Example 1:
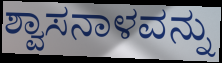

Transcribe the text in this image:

ಶ್ವಾಸನಾಳವನ್ನು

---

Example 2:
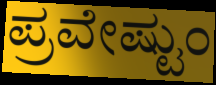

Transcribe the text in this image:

ಪ್ರವೇಷ್ಟುಂ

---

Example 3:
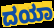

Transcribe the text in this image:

ದಯಾ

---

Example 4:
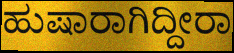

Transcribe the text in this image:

ಹುಷಾರಾಗಿದ್ದೀರಾ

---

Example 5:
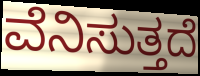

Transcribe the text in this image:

ವೆನಿಸುತ್ತದೆ